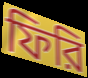
ফিরি